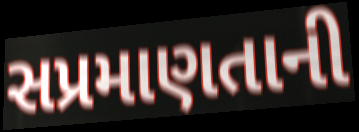
સપ્રમાણતાની